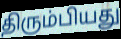
திரும்பியது